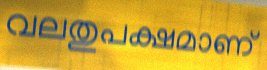
വലതുപക്ഷമാണ്